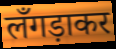
लँगड़ाकर